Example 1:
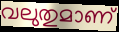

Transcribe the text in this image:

വലുതുമാണ്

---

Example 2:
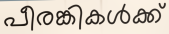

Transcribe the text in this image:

പീരങ്കികൾക്ക്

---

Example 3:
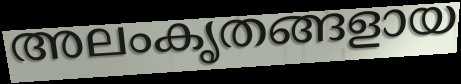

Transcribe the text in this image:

അലംകൃതങ്ങളായ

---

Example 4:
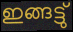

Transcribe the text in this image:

ഇങ്ങട്ടു്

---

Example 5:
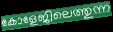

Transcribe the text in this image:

കോളേജിലെത്തുന്ന